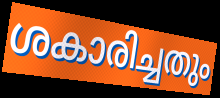
ശകാരിച്ചതും